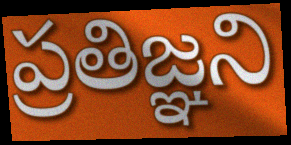
ప్రతిజ్ఞని